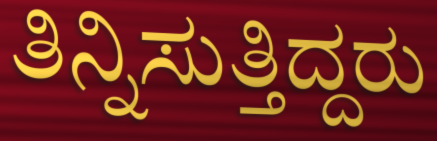
ತಿನ್ನಿಸುತ್ತಿದ್ದರು